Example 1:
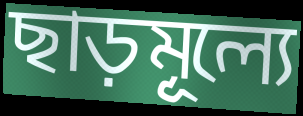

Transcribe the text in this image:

ছাড়মূল্যে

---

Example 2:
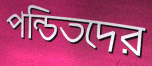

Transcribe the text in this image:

পন্ডিতদের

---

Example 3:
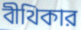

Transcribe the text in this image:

বীথিকার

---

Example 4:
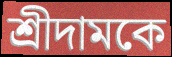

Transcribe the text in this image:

শ্রীদামকে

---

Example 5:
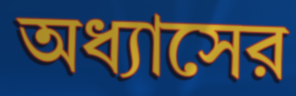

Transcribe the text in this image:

অধ্যাসের